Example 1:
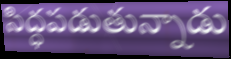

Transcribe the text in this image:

సిద్ధపడుతున్నాడు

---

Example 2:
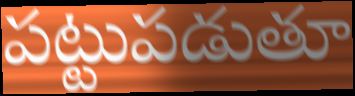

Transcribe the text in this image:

పట్టుపడుతూ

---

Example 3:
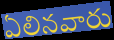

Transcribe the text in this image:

ఏలినవారు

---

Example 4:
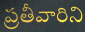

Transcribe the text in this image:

ప్రతీవారిని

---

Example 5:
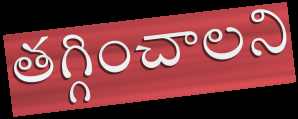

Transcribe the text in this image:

తగ్గించాలని